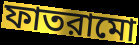
ফাতরামো